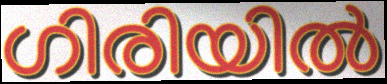
ഗിരിയിൽ